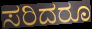
ಸರಿದರೂ